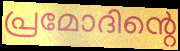
പ്രമോദിന്റെ